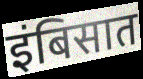
इंबिसात